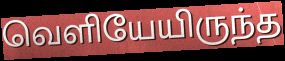
வெளியேயிருந்த